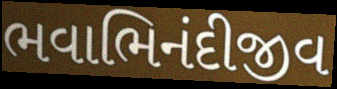
ભવાભિનંદીજીવ